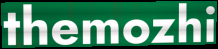
themozhi